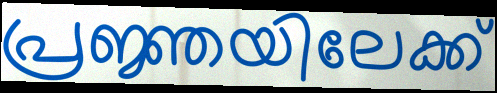
പ്രജ്ഞയിലേക്ക്